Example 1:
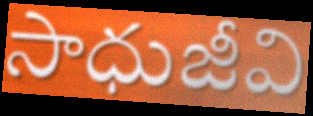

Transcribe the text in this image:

సాధుజీవి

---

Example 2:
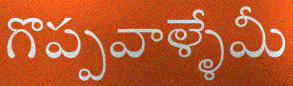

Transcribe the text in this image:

గొప్పవాళ్ళేమీ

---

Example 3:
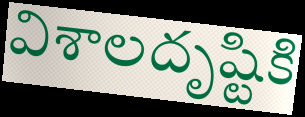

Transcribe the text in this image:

విశాలదృష్టికి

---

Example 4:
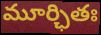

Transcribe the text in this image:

మూర్ఛితః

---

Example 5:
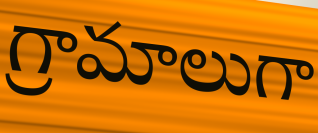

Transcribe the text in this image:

గ్రామాలుగా